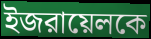
ইজরায়েলকে